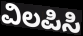
ವಿಲಪಿಸಿ